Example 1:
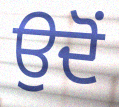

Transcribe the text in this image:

ਉਦੋੰ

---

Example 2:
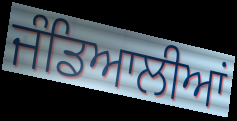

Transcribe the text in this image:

ਜੰਡਿਆਲੀਆਂ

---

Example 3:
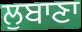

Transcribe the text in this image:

ਲੁਬਾਣਾ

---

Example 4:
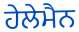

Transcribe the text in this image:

ਹੇਲੇਮੈਨ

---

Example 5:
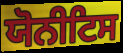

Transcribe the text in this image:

ਯੋਨੀਟਿਸ